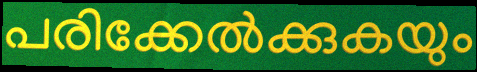
പരിക്കേൽക്കുകയും